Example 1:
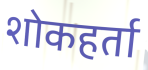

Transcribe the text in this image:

शोकहर्ता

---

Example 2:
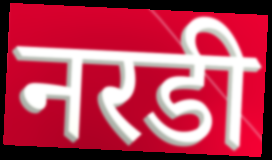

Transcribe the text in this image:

नरडी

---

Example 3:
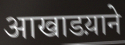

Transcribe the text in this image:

आखाडय़ाने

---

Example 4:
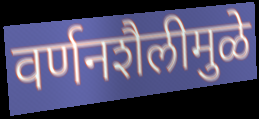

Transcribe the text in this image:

वर्णनशैलीमुळे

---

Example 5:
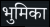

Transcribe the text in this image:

भुमिका